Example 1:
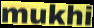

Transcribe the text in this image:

mukhi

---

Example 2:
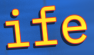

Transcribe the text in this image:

ife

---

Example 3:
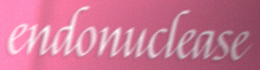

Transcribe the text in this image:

endonuclease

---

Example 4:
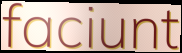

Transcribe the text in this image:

faciunt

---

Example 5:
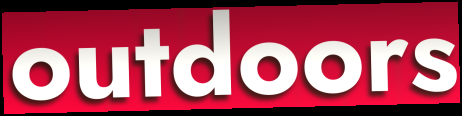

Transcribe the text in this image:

outdoors